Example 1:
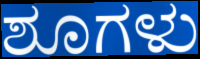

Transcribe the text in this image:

ಶೂಗಳು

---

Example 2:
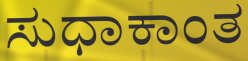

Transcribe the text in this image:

ಸುಧಾಕಾಂತ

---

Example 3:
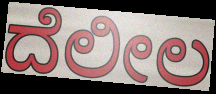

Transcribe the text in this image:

ದೆಲೀಲ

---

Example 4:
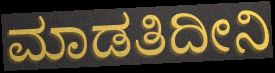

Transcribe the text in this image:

ಮಾಡತಿದೀನಿ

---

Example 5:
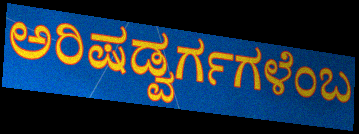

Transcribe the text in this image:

ಅರಿಷಡ್ವರ್ಗಗಳೆಂಬ